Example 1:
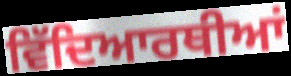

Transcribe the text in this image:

ਵਿੱਦਿਆਰਥੀਆਂ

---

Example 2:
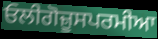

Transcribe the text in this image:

ਓਲੀਗੋਜ਼ੂਸਪਰਮੀਆ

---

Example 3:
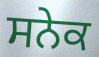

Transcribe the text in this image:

ਸਨੇਕ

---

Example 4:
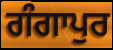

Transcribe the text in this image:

ਗੰਗਾਪੁਰ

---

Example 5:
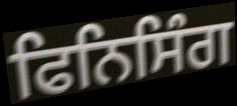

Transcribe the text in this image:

ਫਿਨਿਸਿੰਗ